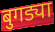
बुगड्या